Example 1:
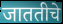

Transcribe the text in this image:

जाततीचे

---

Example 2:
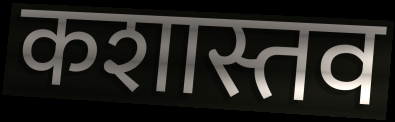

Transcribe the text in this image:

कशास्तव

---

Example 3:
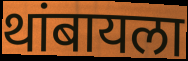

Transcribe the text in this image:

थांबायला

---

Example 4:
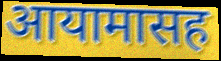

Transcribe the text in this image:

आयामासह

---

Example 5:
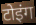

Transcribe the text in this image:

टोइंग